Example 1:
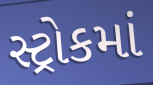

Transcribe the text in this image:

સ્ટ્રોકમાં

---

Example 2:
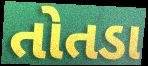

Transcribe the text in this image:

તોતડા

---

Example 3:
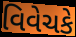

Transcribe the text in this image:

વિવેચકે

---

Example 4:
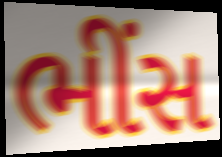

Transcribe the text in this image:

ભીંસ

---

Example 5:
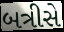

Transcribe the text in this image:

બત્રીસે